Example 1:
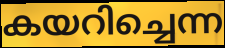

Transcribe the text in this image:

കയറിച്ചെന്ന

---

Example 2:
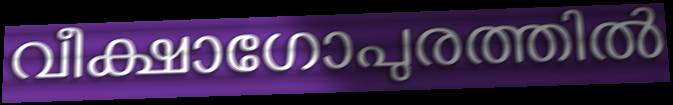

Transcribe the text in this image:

വീക്ഷാഗോപുരത്തിൽ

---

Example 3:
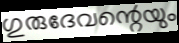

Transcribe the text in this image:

ഗുരുദേവന്റെയും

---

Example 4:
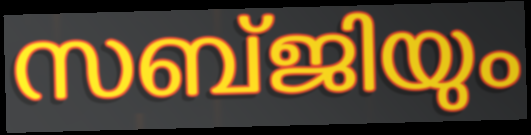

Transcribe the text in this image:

സബ്ജിയും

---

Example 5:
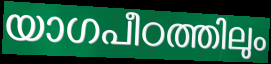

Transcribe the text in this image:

യാഗപീഠത്തിലും